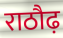
राठौढ़